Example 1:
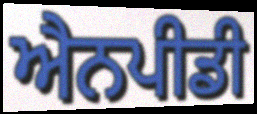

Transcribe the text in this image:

ਐਨਪੀਡੀ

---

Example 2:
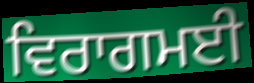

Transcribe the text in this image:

ਵਿਰਾਗਮਈ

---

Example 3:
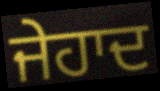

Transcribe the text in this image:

ਜੇਹਾਦ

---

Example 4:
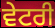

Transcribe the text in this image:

ਵੇਟਰੀ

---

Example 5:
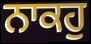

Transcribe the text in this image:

ਨਾਕਹੁ